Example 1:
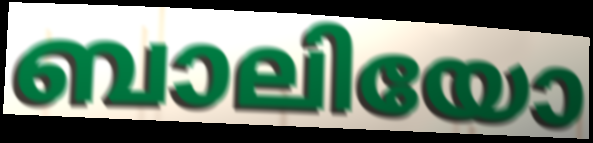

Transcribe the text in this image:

ബാലിയോ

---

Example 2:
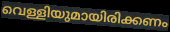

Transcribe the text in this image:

വെള്ളിയുമായിരിക്കണം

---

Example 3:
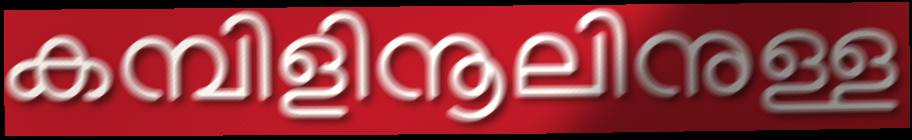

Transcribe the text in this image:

കമ്പിളിനൂലിനുള്ള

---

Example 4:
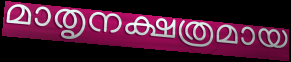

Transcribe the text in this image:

മാതൃനക്ഷത്രമായ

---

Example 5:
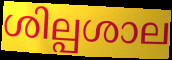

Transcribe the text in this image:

ശില്പശാല